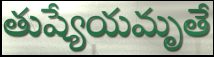
తుష్యేయమృతే